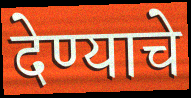
देण्याचे